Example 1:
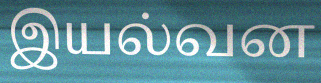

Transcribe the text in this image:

இயல்வன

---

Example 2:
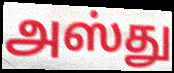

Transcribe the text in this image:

அஸ்து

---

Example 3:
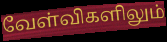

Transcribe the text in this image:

வேள்விகளிலும்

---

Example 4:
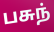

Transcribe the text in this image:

பசுந்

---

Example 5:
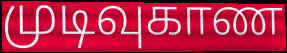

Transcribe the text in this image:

முடிவுகாண